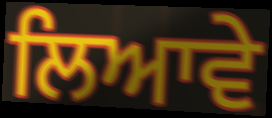
ਲਿਆਵੇ